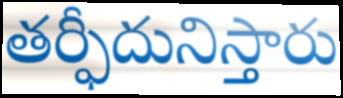
తర్ఫీదునిస్తారు